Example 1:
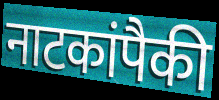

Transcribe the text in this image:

नाटकांपैकी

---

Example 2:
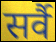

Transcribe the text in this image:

सर्वै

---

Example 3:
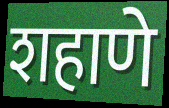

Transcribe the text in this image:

शहाणे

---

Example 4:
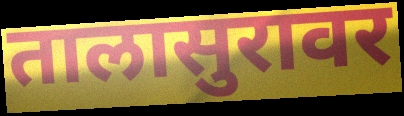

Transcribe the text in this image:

तालासुरावर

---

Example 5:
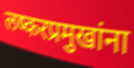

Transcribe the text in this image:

लष्करप्रमुखांना